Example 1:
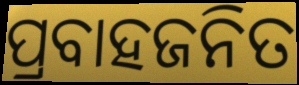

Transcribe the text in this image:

ପ୍ରବାହଜନିତ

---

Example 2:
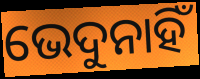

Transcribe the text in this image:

ଭେଦୁନାହିଁ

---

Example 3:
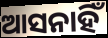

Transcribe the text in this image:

ଆସନାହିଁ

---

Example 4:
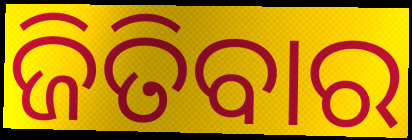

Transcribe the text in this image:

ଜିତିବାର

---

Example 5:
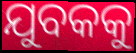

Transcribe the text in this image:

ଯୁବକକୁ